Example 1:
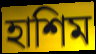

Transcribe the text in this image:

হাশিম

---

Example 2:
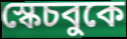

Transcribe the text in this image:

স্কেচবুকে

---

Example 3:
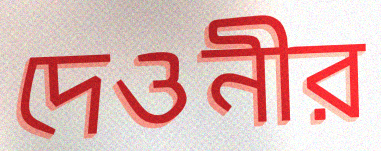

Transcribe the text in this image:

দেওনীর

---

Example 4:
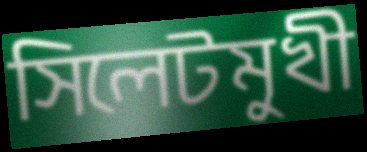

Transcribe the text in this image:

সিলেটমুখী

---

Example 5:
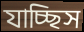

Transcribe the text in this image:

যাচ্ছিস